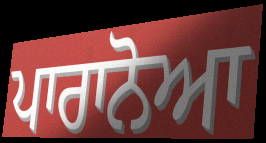
ਪਾਰਾਨੋਆ